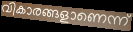
വികാരങ്ങളാണെന്ന്